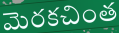
మెరకచింత